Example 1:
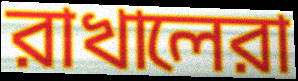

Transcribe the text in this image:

রাখালেরা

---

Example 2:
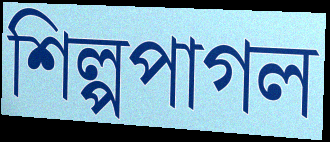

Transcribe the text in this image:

শিল্পপাগল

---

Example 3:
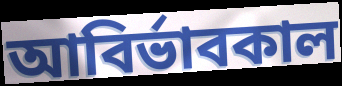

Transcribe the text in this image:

আবির্ভাবকাল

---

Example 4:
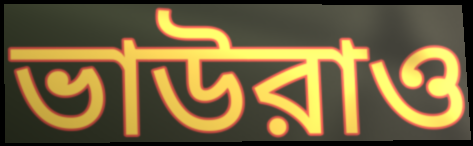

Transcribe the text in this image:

ভাউরাও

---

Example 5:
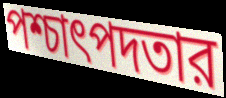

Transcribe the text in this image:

পশ্চাৎপদতার